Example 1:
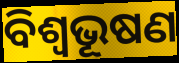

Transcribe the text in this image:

ବିଶ୍ୱଭୂଷଣ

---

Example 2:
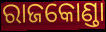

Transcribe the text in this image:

ରାଜକୋଣ୍ଡା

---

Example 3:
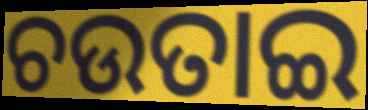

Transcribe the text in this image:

ଚଉତାଇ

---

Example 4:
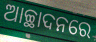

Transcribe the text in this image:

ଆଚ୍ଛାଦନରେ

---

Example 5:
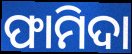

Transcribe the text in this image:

ଫାମିଦା